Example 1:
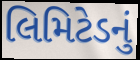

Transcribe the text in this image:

લિમિટેડનું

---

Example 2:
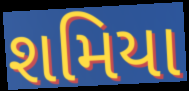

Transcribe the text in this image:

શમિયા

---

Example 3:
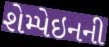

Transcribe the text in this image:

શેમ્પેઇનની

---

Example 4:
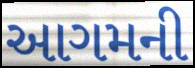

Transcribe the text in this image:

આગમની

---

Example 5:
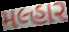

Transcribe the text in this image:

મલ્હાર